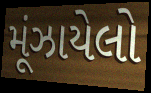
મૂંઝાયેલો